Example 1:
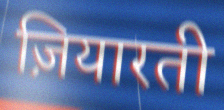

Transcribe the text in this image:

ज़ियारती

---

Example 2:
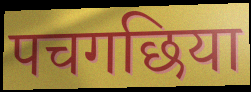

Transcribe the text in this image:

पचगछिया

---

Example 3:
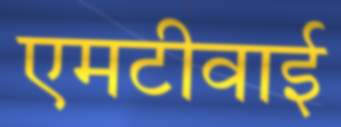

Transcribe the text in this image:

एमटीवाई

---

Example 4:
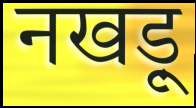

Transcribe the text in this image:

नखड़ू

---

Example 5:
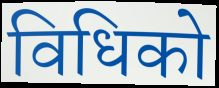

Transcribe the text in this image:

विधिको